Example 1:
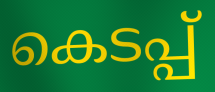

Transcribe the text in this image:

കെടപ്പ്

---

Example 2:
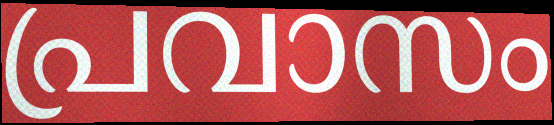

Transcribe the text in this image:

പ്രവാസം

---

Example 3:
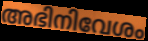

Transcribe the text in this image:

അഭിനിവേശം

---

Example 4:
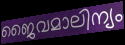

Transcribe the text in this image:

ജൈവമാലിന്യം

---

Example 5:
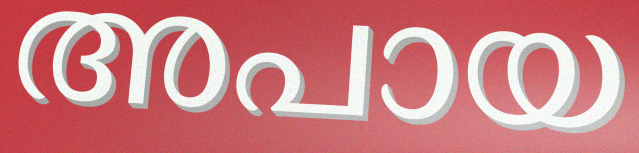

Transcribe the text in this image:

അപായ